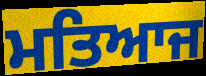
ਮਤਿਆਜ